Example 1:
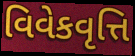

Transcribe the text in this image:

વિવેકવૃત્તિ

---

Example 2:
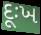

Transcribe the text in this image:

દૂઃખ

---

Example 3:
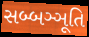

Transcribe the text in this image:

સબ્બઞ્ઞૂતિ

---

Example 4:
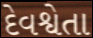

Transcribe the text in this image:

દેવશ્વેતા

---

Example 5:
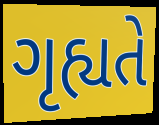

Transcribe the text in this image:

ગૃહ્યતે